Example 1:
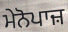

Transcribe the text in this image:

ਮੇਨੋਪਾਜ਼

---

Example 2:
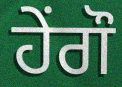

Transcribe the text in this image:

ਹੇਂਗੌ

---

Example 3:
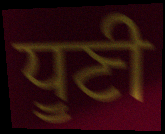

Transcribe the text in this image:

ਧੂਣੀ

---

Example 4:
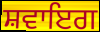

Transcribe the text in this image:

ਸ਼ਵਾਇਗ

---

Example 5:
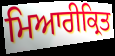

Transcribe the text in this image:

ਮਿਆਰੀਕ੍ਰਿਤ